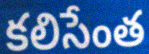
కలిసేంత